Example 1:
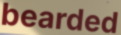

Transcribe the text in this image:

bearded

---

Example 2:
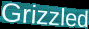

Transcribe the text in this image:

Grizzled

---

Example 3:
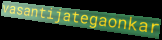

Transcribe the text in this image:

vasantijategaonkar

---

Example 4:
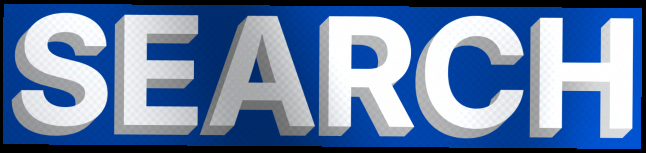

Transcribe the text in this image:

SEARCH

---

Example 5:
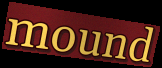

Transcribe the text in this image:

mound